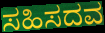
ಸಹಿಸದವ